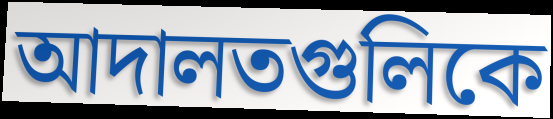
আদালতগুলিকে